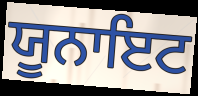
ਯੂਨਾਇਟ